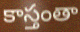
కాస్తంతా